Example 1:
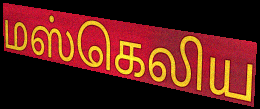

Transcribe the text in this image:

மஸ்கெலிய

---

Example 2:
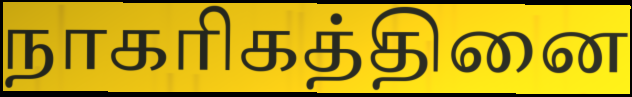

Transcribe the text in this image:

நாகரிகத்தினை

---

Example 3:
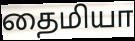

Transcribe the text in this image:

தைமியா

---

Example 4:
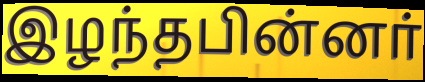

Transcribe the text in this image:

இழந்தபின்னர்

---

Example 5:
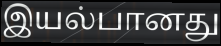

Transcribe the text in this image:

இயல்பானது